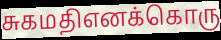
சுகமதிஎனக்கொரு